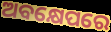
ଅବକ୍ଷେପରେ